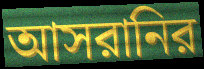
আসরানির